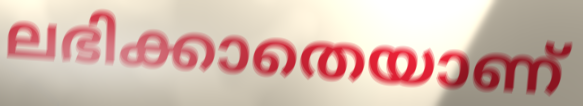
ലഭിക്കാതെയാണ്